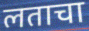
लताचा